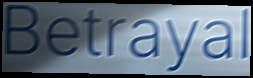
Betrayal